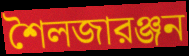
শৈলজারঞ্জন